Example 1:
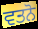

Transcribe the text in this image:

ਵਤਨੋ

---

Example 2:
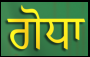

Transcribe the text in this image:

ਗੋਧਾ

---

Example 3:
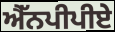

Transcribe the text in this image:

ਐੱਨਪੀਪੀਏ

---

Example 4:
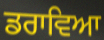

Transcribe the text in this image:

ਡਰਾਵਿਆ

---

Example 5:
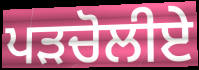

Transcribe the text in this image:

ਪੜਚੋਲੀਏ